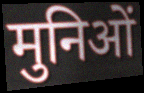
मुनिओं